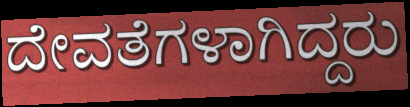
ದೇವತೆಗಳಾಗಿದ್ದರು